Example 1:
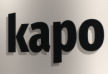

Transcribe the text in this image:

kapo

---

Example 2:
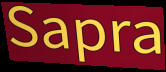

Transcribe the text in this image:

Sapra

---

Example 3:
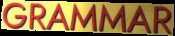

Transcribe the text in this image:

GRAMMAR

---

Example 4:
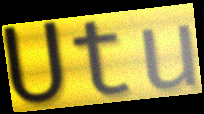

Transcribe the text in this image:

Utu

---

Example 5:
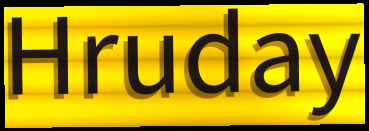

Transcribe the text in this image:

Hruday